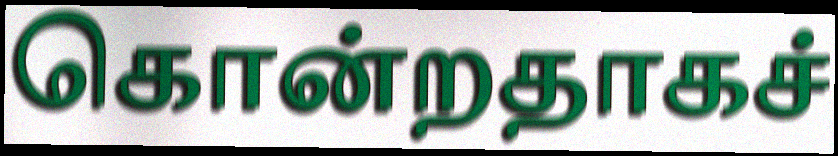
கொன்றதாகச்